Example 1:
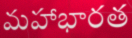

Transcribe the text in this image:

మహాభారత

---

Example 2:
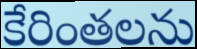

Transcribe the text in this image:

కేరింతలను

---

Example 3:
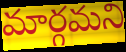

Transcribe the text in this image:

మార్గమని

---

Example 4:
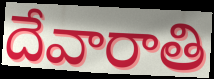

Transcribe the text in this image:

దేవారాతి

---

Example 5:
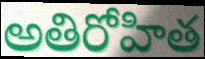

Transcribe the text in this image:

అతిరోహిత